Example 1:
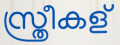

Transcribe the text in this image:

സ്ത്രീകള്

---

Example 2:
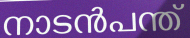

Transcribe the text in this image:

നാടൻപന്ത്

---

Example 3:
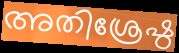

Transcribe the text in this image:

അതിശ്രേഷ്ഠ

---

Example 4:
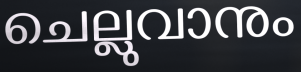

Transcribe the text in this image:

ചെല്ലുവാനും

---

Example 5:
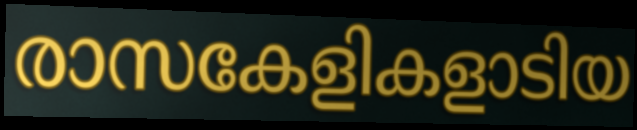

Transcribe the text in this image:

രാസകേളികളാടിയ